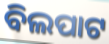
ବିଲପାଟ